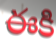
ఈకి